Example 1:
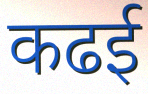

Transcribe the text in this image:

कढई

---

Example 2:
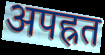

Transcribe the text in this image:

अपह्रत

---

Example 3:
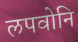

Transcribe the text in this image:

लपवोनि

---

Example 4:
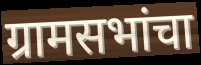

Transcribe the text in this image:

ग्रामसभांचा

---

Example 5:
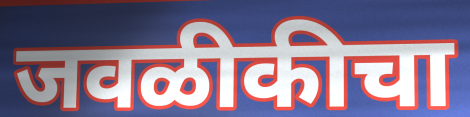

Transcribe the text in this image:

जवळीकीचा